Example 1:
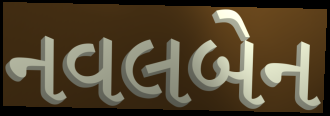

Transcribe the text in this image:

નવલબેન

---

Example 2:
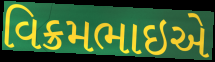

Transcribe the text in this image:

વિક્રમભાઇએ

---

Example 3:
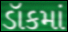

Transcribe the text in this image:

ડૉકમાં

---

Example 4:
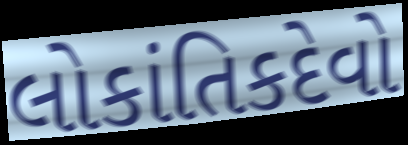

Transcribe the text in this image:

લોકાંતિકદેવો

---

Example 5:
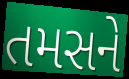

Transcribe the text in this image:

તમસને